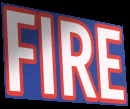
FIRE